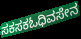
ಸಕಸಕಓಧಿವಸೇನ